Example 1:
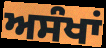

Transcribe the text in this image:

ਅਸੰਖਾਂ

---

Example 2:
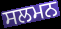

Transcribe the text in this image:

ਸਲਮਨ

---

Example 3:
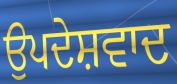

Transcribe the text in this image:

ਉਪਦੇਸ਼ਵਾਦ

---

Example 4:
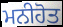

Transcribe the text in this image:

ਮਨੀਹੋਤ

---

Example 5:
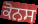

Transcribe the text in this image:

ਕੋਨਸ